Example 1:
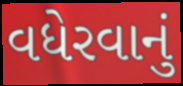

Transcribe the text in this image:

વધેરવાનું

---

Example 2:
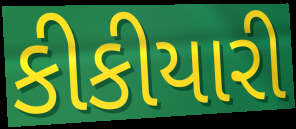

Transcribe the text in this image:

કીકીયારી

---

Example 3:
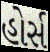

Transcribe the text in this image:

હોર્સ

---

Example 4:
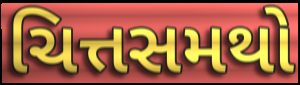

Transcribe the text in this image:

ચિત્તસમથો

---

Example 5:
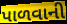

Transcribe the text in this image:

પાળવાની